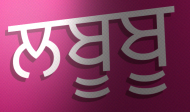
ਲਬੂਬੂ